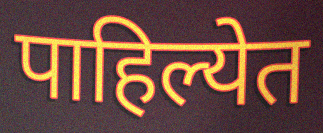
पाहिल्येत